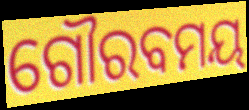
ଗୌରବମୟ